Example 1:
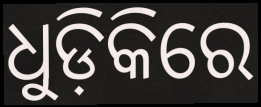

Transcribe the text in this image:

ଧୁଡ଼ିକିରେ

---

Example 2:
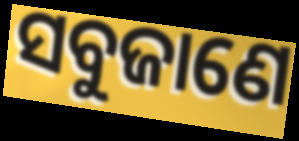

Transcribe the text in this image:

ସବୁଜାଣେ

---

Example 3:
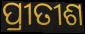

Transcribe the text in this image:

ପ୍ରୀତୀଶ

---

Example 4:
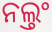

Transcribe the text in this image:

ନଲ୍ତଂ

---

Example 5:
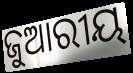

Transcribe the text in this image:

ଜୁଆରୀୟ